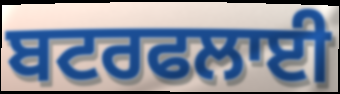
ਬਟਰਫਲਾਈ